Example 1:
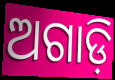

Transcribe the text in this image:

ଅଗାଡ଼ି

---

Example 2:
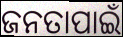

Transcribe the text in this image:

ଜନତାପାଇଁ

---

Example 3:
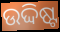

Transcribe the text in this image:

ଉଦ୍ଦିଷ୍ଟ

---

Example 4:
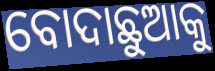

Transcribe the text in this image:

ବୋଦାଛୁଆକୁ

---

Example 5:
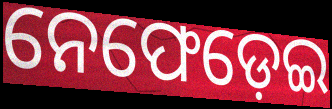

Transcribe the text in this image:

ନେଫେଡ଼େଇ